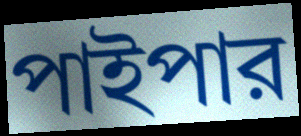
পাইপার